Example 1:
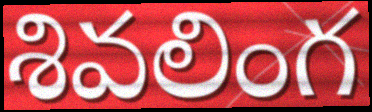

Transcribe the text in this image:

శివలింగ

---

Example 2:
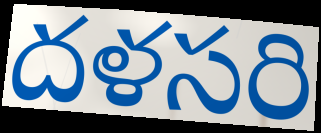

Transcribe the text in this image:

దళసరి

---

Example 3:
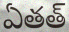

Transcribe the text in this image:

ఏతత్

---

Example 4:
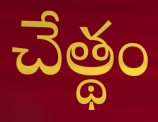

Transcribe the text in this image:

చేత్థం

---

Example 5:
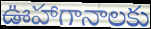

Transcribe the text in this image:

ఊహాగానాలకు